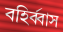
বহির্ব্বাস